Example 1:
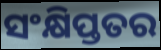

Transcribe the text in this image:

ସଂକ୍ଷିପ୍ତତର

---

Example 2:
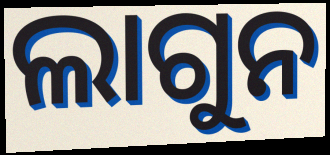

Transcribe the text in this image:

ଲାଗୁନ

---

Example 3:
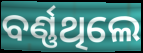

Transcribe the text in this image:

ବର୍ଣ୍ଣଥିଲେ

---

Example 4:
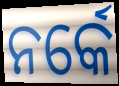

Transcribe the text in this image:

ନର୍କେ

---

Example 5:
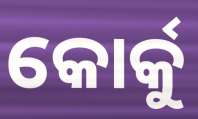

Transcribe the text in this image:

କୋର୍କୁ